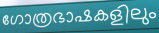
ഗോത്രഭാഷകളിലും